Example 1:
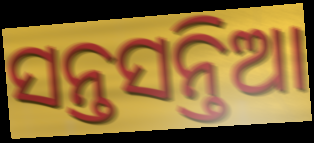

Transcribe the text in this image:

ସନ୍ତସନ୍ତିଆ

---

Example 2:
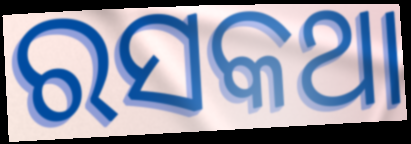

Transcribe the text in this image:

ରସକଥା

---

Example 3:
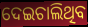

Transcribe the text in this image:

ଦେଇଚାଲିଥିବ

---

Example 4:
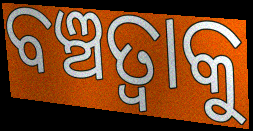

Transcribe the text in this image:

ବଞ୍ଚତ୍ବାକୁ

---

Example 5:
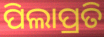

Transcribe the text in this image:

ପିଲାପ୍ରତି